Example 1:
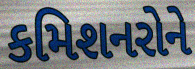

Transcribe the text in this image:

કમિશનરોને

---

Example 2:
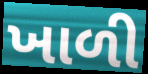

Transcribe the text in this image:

ખાળી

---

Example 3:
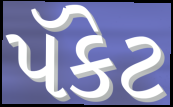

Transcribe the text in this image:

પૅકેટ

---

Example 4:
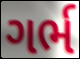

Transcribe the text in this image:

ગર્ભ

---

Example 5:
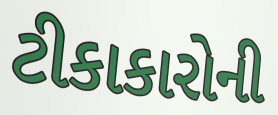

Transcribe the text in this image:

ટીકાકારોની